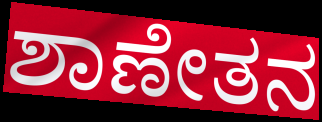
ಶಾಣೇತನ